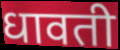
धावती